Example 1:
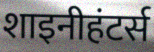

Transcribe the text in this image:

शाइनीहंटर्स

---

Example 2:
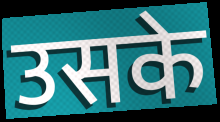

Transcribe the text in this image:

उसके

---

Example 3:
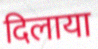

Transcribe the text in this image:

दिलाया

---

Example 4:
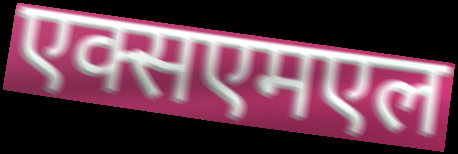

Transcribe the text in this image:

एक्सएमएल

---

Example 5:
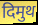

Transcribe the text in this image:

दिमुथ